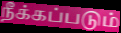
நீக்கப்படும்